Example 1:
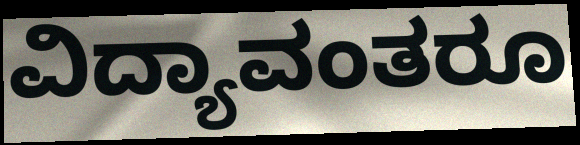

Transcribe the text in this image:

ವಿದ್ಯಾವಂತರೂ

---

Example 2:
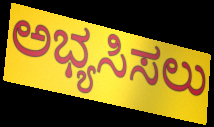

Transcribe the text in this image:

ಅಭ್ಯಸಿಸಲು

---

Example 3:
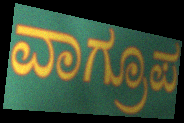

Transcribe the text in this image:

ವಾಗ್ರೂಪ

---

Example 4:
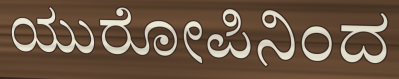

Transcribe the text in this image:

ಯುರೋಪಿನಿಂದ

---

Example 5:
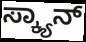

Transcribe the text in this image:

ಸ್ಕ್ಯಾನ್